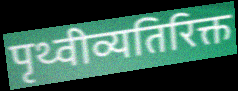
पृथ्वीव्यतिरिक्त